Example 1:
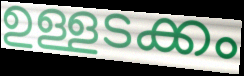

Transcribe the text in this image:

ഉള്ളടക്കം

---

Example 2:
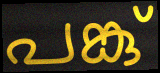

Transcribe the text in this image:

പങ്കു്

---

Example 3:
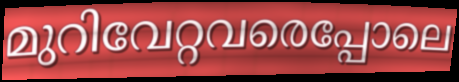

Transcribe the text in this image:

മുറിവേറ്റവരെപ്പോലെ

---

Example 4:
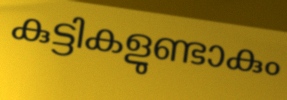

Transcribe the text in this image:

കുട്ടികളുണ്ടാകും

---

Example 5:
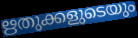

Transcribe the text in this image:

ഋതുക്കളുടെയും